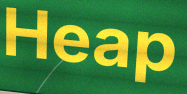
Heap